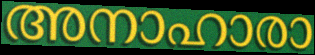
അനാഹാരാ